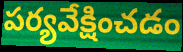
పర్యవేక్షించడం